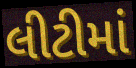
લીટીમાં